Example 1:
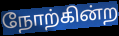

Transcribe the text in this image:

நோற்கின்ற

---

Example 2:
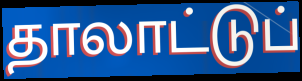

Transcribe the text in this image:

தாலாட்டுப்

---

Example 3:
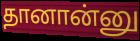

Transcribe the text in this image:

தானான்னு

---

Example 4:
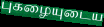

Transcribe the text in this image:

புகழையுடைய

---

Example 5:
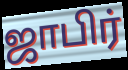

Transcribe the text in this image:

ஜாபிர்